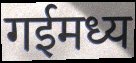
गईमध्य